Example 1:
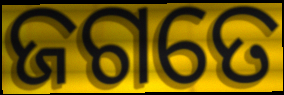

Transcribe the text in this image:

ଜଗତେ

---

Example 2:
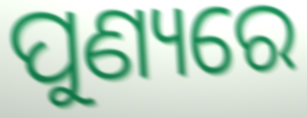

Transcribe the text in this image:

ପୁଣ୍ୟରେ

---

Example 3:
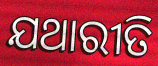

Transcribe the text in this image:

ଯଥାରୀତି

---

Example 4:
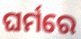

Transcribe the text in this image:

ଘର୍ମରେ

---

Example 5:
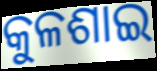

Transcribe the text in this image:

କୁଳଶାଇ